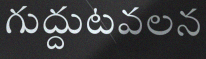
గుద్దుటవలన